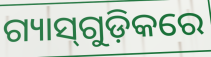
ଗ୍ୟାସ୍‌ଗୁଡ଼ିକରେ